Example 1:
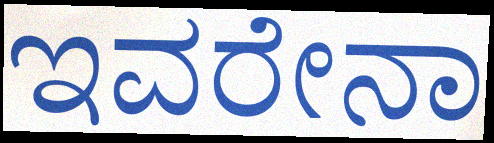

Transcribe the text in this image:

ಇವರೇನಾ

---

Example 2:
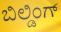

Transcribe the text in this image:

ಬಿಲ್ಡಿಂಗ್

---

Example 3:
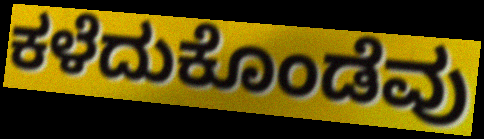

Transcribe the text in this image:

ಕಳೆದುಕೊಂಡೆವು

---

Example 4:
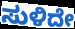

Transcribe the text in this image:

ಸುಳಿದೇ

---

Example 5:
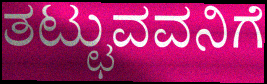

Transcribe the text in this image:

ತಟ್ಟುವವನಿಗೆ